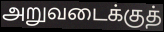
அறுவடைக்குத்